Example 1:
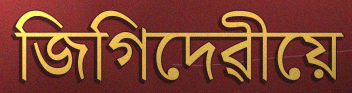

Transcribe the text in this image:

জিগিদেৱীয়ে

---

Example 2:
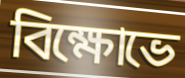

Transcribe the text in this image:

বিক্ষোভে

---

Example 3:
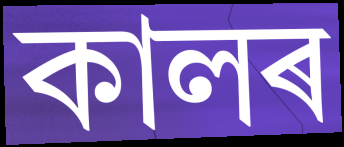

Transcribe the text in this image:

কালৰ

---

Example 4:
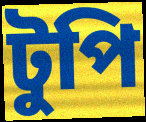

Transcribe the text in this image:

টুপি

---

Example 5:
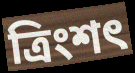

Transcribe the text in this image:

ত্ৰিংশৎ